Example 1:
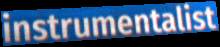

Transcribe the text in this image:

instrumentalist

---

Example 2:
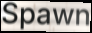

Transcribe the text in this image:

Spawn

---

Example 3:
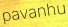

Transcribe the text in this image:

pavanhu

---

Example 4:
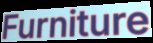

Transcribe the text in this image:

Furniture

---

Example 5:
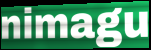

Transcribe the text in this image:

nimagu